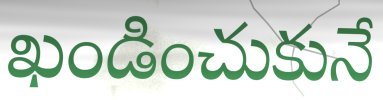
ఖండించుకునే